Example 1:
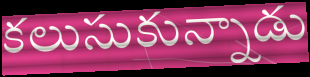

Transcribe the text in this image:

కలుసుకున్నాడు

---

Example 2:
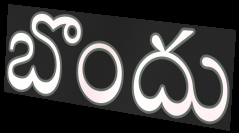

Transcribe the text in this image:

బొందు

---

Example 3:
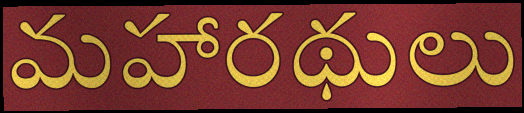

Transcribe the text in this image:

మహారథులు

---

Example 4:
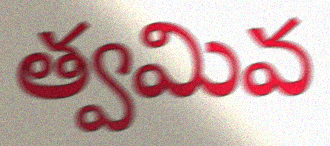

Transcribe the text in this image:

త్వమివ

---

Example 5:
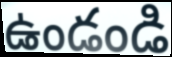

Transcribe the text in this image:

ఉండండి